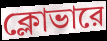
ক্লোভারে